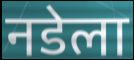
नडेला